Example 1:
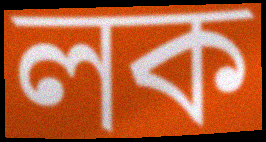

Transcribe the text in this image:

লক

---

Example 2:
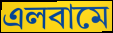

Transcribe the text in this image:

এলবামে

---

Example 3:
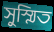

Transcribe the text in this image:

সুস্মিত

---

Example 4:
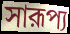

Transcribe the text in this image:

সারূপ্য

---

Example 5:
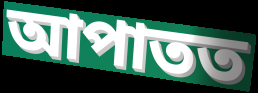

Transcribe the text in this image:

আপাতত